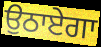
ਉਠਾਏਗਾ